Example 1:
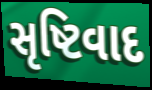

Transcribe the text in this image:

સૃષ્ટિવાદ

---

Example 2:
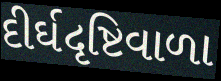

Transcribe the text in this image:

દીર્ઘદૃષ્ટિવાળા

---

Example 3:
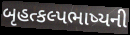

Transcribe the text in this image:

બૃહત્કલ્પભાષ્યની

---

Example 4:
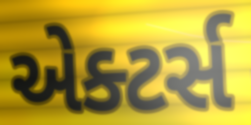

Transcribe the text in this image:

એક્ટર્સ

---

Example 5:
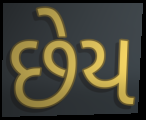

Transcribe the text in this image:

છેય